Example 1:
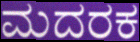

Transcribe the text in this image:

ಮದರಕ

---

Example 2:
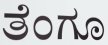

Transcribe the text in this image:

ತೆಂಗೂ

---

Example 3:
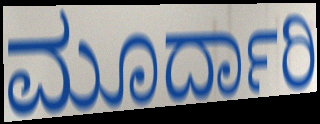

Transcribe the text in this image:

ಮೂರ್ದಾರಿ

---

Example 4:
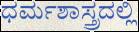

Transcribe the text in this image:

ಧರ್ಮಶಾಸ್ತ್ರದಲ್ಲಿ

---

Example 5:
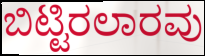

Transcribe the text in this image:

ಬಿಟ್ಟಿರಲಾರವು